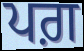
ਪਗ਼